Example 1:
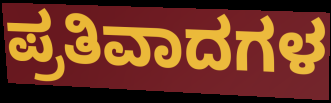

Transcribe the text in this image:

ಪ್ರತಿವಾದಗಳ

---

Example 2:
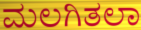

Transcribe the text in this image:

ಮಲಗಿತಲಾ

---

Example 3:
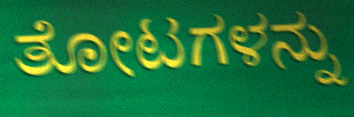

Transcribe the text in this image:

ತೋಟಗಳನ್ನು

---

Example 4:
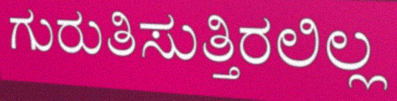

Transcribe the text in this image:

ಗುರುತಿಸುತ್ತಿರಲಿಲ್ಲ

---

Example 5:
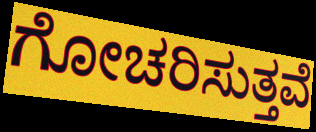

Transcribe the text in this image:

ಗೋಚರಿಸುತ್ತವೆ